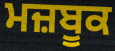
ਮਜ਼ਬੂਕ